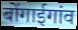
बोंगाईगांव